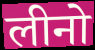
लीनो